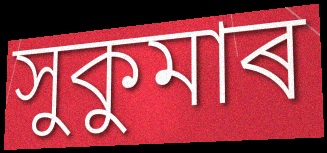
সুকুমাৰ